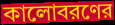
কালোবরণের